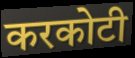
करकोटी